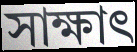
সাক্ষাৎ